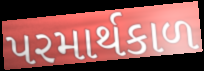
પરમાર્થકાળ